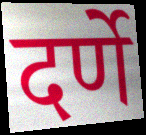
दर्णे